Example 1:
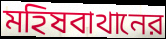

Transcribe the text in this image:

মহিষবাথানের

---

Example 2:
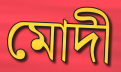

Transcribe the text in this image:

মোদী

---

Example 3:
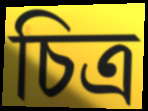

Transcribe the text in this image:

চিত্র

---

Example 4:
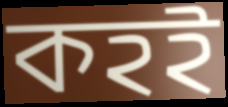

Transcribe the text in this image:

কহই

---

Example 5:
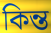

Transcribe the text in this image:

কিন্ত